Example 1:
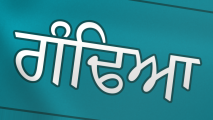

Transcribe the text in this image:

ਗੰਢਿਆ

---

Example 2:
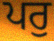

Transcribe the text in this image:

ਪਰੁ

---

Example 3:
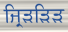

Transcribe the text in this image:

ਜ੍ਰਿੜੜਿੜ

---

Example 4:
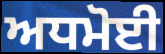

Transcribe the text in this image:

ਅਧਮੋਈ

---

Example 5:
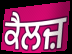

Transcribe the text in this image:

ਕੈਲਜ਼